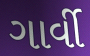
ગાર્વી